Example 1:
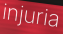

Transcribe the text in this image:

injuria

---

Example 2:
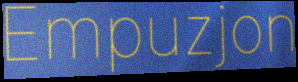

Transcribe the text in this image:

Empuzjon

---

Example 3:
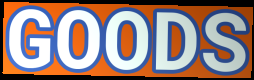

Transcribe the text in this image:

GOODS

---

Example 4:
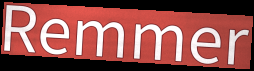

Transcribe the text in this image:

Remmer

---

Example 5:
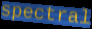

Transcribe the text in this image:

spectral